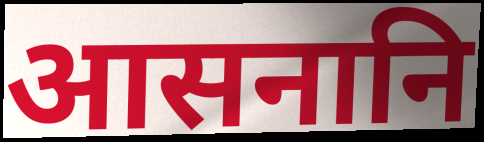
आसनानि